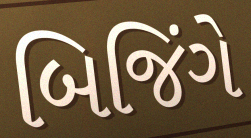
બિજિંગે